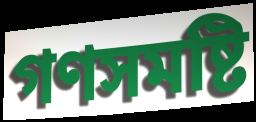
গণসমষ্টি